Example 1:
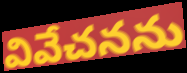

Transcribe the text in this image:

వివేచనను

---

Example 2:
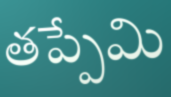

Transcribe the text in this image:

తప్పేమి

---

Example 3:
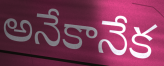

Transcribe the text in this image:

అనేకానేక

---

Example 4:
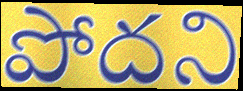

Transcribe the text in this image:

పోదని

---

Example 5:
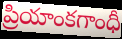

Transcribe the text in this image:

ప్రియాంకగాంధీ